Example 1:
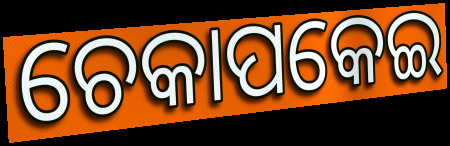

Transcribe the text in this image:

ଚେକାପକେଇ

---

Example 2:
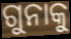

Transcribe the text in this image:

ଗୁନାକୁ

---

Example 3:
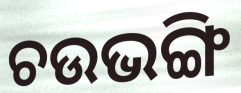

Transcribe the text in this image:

ଚଉଭଙ୍ଗି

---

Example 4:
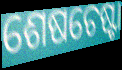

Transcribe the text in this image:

ଶେଷଚେଷ୍ଟା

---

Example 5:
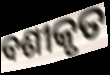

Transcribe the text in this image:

ବଶୀକୃତ